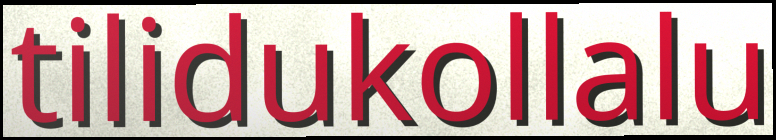
tilidukollalu